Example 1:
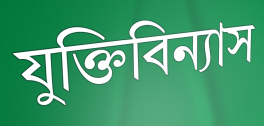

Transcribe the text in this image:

যুক্তিবিন্যাস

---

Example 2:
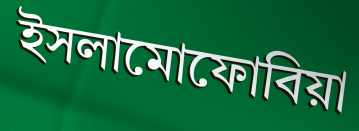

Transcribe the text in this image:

ইসলামোফোবিয়া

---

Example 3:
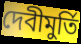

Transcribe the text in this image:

দেবীমুর্তি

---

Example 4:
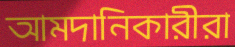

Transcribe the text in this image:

আমদানিকারীরা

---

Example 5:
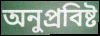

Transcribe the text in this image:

অনুপ্রবিষ্ট